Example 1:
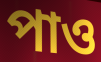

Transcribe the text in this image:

পাও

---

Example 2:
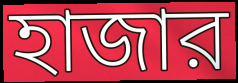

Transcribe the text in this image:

হাজার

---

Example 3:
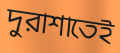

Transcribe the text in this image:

দুরাশাতেই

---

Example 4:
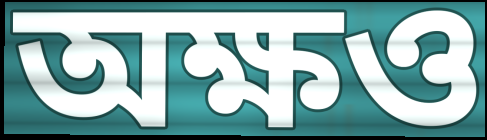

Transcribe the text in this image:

অক্ষও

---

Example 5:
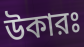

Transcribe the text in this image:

উকারঃ